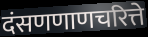
दंसणणाणचरित्ते